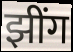
झींग